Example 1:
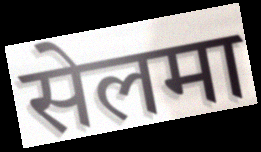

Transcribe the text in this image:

सेलमा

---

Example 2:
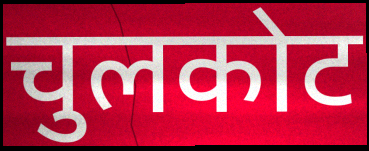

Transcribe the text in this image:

चुलकोट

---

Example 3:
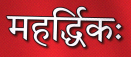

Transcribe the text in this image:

महर्द्धिकः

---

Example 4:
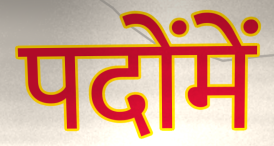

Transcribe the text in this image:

पदोंमें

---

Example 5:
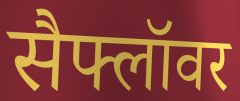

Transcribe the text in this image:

सैफ्लॉवर